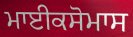
ਮਾਈਕਸੋਮਾਸ